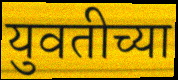
युवतीच्या